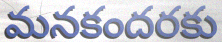
మనకందరకు